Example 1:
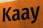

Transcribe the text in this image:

Kaay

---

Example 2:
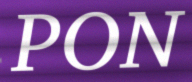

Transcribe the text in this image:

PON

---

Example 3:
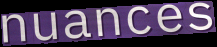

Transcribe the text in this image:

nuances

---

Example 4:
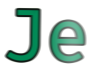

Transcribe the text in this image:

Je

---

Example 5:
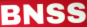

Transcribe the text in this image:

BNSS